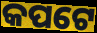
କପଟେ